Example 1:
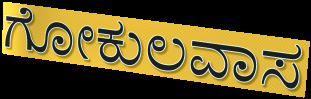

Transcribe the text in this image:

ಗೋಕುಲವಾಸ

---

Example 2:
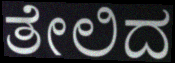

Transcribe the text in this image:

ತೇಲಿದ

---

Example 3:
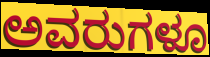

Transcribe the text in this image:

ಅವರುಗಳೂ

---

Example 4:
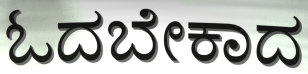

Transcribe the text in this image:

ಓದಬೇಕಾದ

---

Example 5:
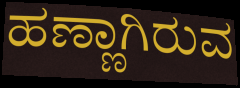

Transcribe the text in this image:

ಹಣ್ಣಾಗಿರುವ